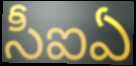
సీఐఏ